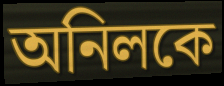
অনিলকে